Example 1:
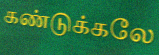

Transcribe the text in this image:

கண்டுக்கலே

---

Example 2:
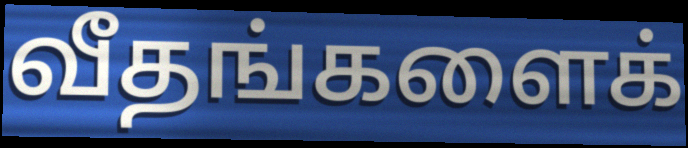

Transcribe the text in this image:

வீதங்களைக்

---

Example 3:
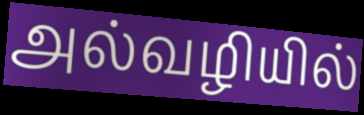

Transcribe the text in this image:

அல்வழியில்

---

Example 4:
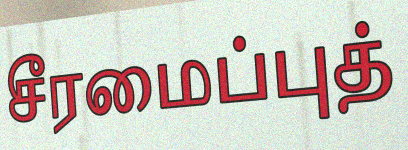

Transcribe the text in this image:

சீரமைப்புத்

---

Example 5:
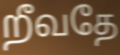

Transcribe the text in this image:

றீவதே